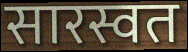
सारस्वत